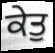
ਕੇਤੁ